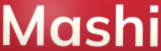
Mashi